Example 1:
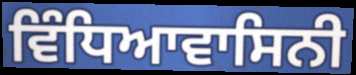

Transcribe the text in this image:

ਵਿੰਧਿਆਵਾਸਿਨੀ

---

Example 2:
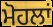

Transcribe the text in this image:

ਮੋਹਲਾਂ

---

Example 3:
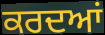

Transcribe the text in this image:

ਕਰਦਆਂ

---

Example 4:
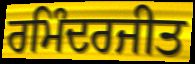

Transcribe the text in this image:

ਰਮਿੰਦਰਜੀਤ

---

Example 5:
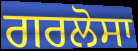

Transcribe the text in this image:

ਗਰਲੋਸਾ